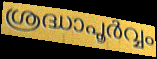
ശ്രദ്ധാപൂർവ്വം